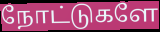
நோட்டுகளே